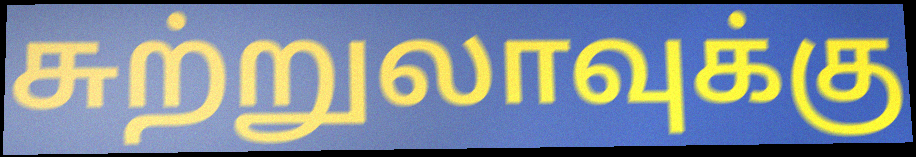
சுற்றுலாவுக்கு